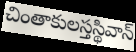
చింతాకులస్తస్థివాన్